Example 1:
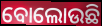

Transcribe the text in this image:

ବୋଲୋଉଛି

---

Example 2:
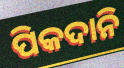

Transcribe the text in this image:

ପିକଦାନି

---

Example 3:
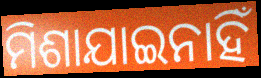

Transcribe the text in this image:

ମିଶାଯାଇନାହିଁ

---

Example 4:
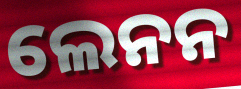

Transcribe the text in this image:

ଲେନନ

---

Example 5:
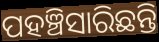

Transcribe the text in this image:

ପହଞ୍ଚିସାରିଛନ୍ତି